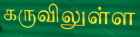
கருவிலுள்ள